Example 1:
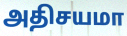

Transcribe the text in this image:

அதிசயமா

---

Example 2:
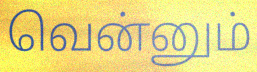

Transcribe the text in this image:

வென்னும்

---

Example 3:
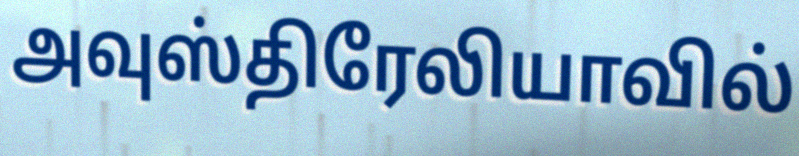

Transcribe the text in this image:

அவுஸ்திரேலியாவில்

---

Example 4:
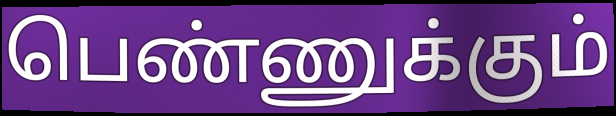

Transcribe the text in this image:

பெண்ணுக்கும்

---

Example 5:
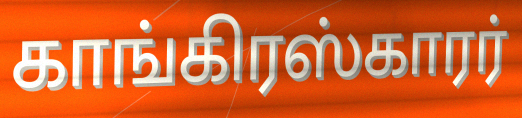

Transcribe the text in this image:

காங்கிரஸ்காரர்